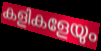
കളികളേയും